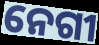
ନେଗୀ